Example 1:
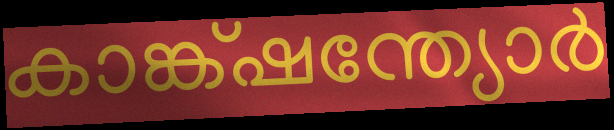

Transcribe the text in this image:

കാങ്ക്ഷന്ത്യോർ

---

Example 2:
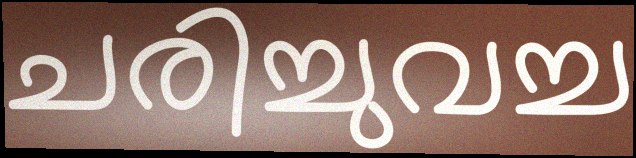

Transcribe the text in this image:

ചരിച്ചുവച്ച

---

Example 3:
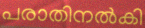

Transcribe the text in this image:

പരാതിനൽകി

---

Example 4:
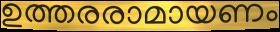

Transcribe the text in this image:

ഉത്തരരാമായണം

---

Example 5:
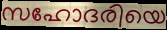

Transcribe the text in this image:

സഹോദരിയെ